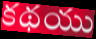
కథయు